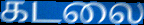
கடலை